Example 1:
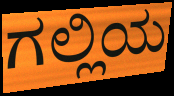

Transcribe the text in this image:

ಗಲ್ಲಿಯ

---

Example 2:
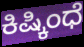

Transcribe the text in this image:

ಕಿಷ್ಕಿಂಧೆ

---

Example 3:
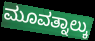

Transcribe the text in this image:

ಮೂವತ್ನಾಲ್ಕು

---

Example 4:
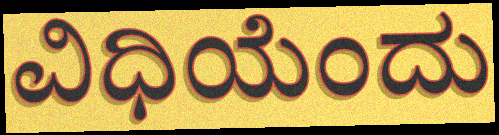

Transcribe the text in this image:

ವಿಧಿಯೆಂದು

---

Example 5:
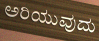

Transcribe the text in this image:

ಅರಿಯುವುದು